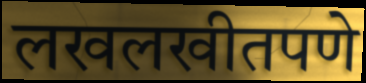
लखलखीतपणे